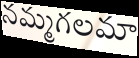
నమ్మగలమా